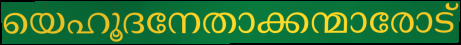
യെഹൂദനേതാക്കന്മാരോട്